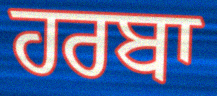
ਹਰਬਾ